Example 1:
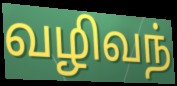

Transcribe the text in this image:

வழிவந்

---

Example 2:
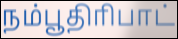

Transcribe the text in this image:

நம்பூதிரிபாட்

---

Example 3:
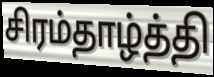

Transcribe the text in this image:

சிரம்தாழ்த்தி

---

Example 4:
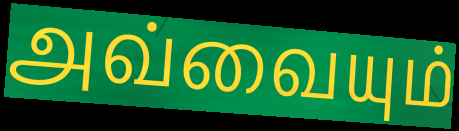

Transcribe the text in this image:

அவ்வையும்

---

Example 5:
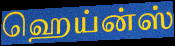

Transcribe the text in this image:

ஹெய்ன்ஸ்